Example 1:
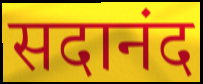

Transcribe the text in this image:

सदानंद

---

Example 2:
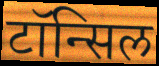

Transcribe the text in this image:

टॉन्सिल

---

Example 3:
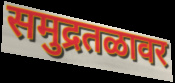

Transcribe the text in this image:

समुद्रतळावर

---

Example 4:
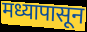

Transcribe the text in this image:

मध्यापासून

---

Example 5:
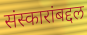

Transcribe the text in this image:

संस्कारांबद्दल